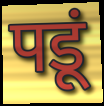
पडूं